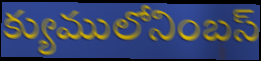
క్యుములోనింబస్